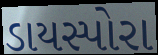
ડાયસ્પોરા